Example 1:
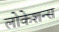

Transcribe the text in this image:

लोकेशन्स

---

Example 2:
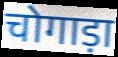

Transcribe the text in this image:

चोगाड़ा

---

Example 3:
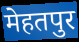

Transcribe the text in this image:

मेहतपुर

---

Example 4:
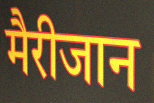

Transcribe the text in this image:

मैरीजान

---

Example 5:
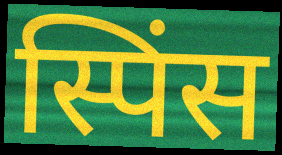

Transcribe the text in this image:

स्पिंस